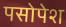
पसोपेश